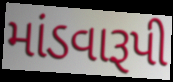
માંડવારૂપી